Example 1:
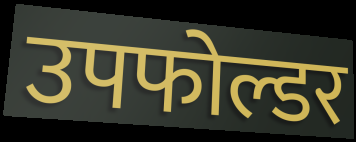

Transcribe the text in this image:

उपफोल्डर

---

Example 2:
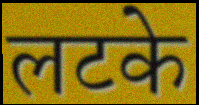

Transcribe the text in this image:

लटके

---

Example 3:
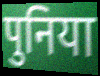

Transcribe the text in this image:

पुनिया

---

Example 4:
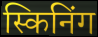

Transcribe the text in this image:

स्किनिंग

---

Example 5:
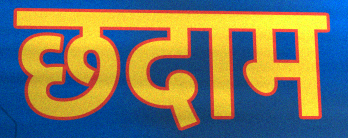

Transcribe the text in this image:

छदाम